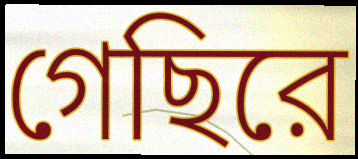
গেছিরে